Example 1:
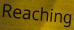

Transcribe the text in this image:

Reaching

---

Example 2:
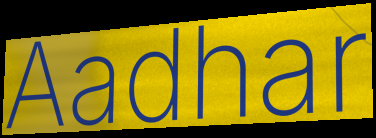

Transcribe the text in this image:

Aadhar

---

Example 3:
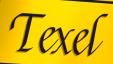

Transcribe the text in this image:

Texel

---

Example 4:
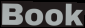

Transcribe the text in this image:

Book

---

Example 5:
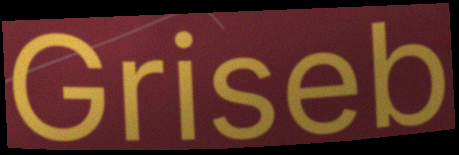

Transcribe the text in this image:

Griseb